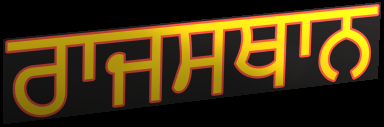
ਰਾਜਸਥਾਨ